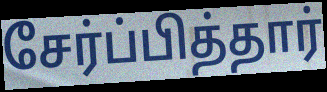
சேர்ப்பித்தார்